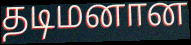
தடிமனான